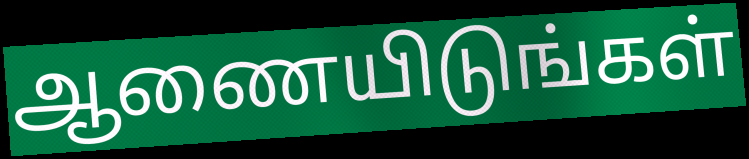
ஆணையிடுங்கள்